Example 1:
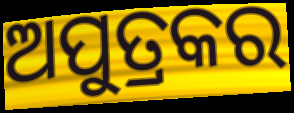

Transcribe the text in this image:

ଅପୁତ୍ରକର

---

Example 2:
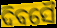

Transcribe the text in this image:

ଦିବସୈ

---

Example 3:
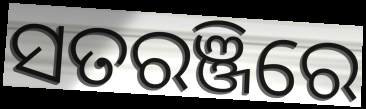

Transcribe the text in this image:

ସତରଞ୍ଜିରେ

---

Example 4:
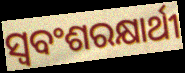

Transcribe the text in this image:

ସ୍ବବଂଶରକ୍ଷାର୍ଥୀ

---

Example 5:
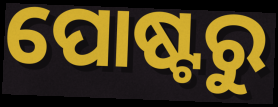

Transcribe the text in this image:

ପୋଷ୍ଟରୁ